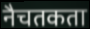
नैचतकता